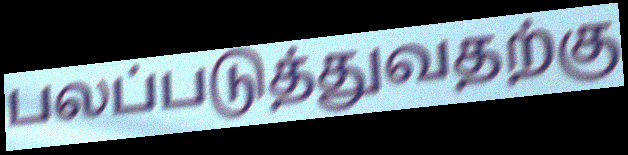
பலப்படுத்துவதற்கு